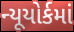
ન્યૂયોર્કમાં